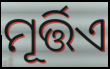
ମୂର୍ତ୍ତିଏ